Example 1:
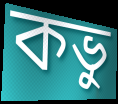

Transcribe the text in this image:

কভু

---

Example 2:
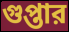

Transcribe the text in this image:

গুপ্তার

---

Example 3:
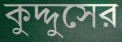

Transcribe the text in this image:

কুদ্দুসের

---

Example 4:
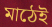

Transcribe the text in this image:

মাঠেই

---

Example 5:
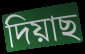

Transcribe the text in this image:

দিয়াছ